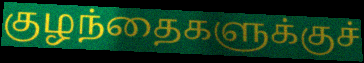
குழந்தைகளுக்குச்